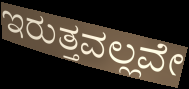
ಇರುತ್ತವಲ್ಲವೇ